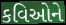
કવિઓને